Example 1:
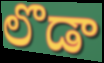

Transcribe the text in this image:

లొడా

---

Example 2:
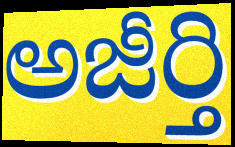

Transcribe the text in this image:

అజీర్తి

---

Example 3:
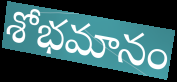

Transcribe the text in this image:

శోభమానం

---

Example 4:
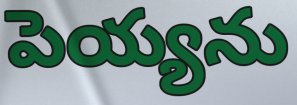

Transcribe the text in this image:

పెయ్యను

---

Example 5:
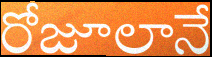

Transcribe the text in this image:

రోజూలానే